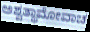
ಅಶ್ವತ್ಥಾಮೋವಾಚ